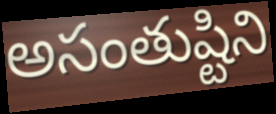
అసంతుష్టిని